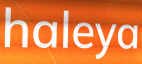
haleya